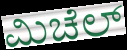
ಮಿಚೆಲ್